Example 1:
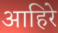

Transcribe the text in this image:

आहिरे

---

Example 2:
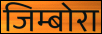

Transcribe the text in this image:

जिम्बोरा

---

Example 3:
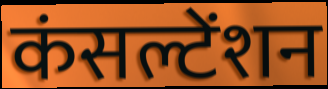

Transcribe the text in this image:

कंसल्टेंशन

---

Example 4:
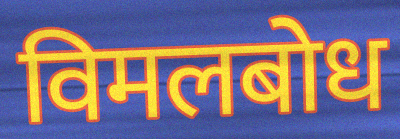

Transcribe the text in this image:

विमलबोध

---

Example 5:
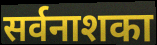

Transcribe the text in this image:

सर्वनाशका